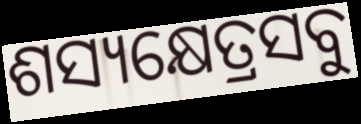
ଶସ୍ୟକ୍ଷେତ୍ରସବୁ